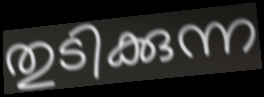
തുടിക്കുന്ന